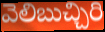
వెలిబుచ్చిరి